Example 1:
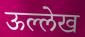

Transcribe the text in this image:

ऊल्लेख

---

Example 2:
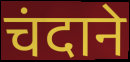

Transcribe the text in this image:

चंदाने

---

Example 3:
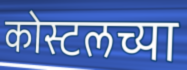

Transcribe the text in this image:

कोस्टलच्या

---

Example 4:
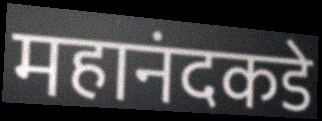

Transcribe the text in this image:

महानंदकडे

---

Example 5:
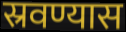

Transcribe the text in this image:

स्रवण्यास